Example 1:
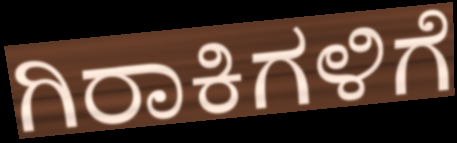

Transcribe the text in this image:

ಗಿರಾಕಿಗಳಿಗೆ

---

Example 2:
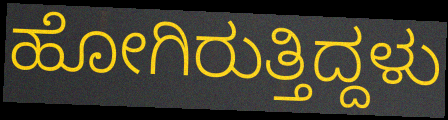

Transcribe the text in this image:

ಹೋಗಿರುತ್ತಿದ್ದಳು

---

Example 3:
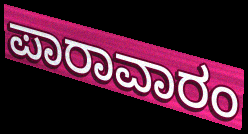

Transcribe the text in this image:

ಪಾರಾವಾರಂ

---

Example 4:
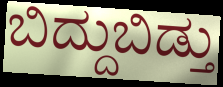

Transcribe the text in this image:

ಬಿದ್ದುಬಿಡ್ತು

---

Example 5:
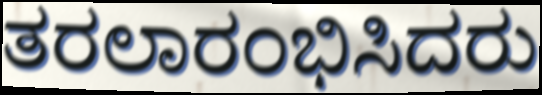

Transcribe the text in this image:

ತರಲಾರಂಭಿಸಿದರು